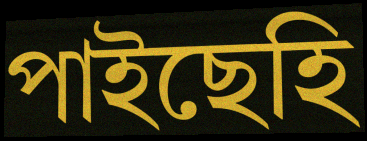
পাইছেহি